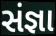
સંજ્ઞા